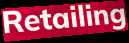
Retailing